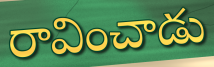
రావించాడు